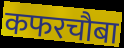
कफरचौबा